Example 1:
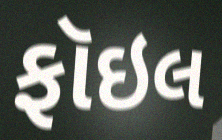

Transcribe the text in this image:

ફૉઇલ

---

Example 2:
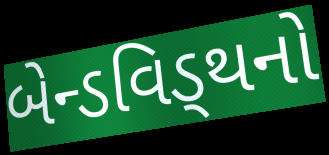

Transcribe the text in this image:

બેન્ડવિડ્થનો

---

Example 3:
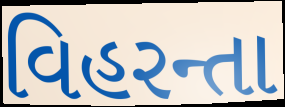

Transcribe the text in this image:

વિહરન્તા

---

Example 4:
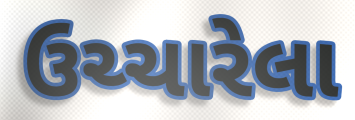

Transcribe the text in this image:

ઉચ્ચારેલા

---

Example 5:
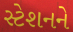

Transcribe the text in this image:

સ્ટેશનને